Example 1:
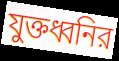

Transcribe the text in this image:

যুক্তধ্বনির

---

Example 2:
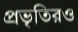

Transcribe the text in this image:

প্রভৃতিরও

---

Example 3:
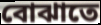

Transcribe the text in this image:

বোঝাতে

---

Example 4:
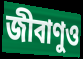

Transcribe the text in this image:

জীবাণুও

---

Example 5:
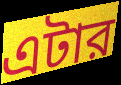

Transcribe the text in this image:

এটার